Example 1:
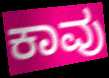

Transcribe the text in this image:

ಕಾವು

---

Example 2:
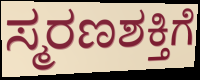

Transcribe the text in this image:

ಸ್ಮರಣಶಕ್ತಿಗೆ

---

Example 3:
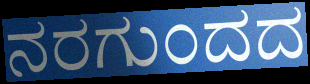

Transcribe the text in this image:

ನರಗುಂದದ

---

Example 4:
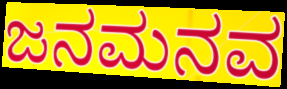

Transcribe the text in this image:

ಜನಮನವ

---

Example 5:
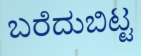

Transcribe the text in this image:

ಬರೆದುಬಿಟ್ಟ